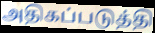
அதிகப்படுத்தி